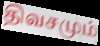
திவசமும்